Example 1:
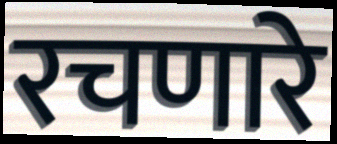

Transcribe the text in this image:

रचणारे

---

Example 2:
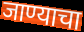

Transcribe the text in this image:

जाण्‍याचा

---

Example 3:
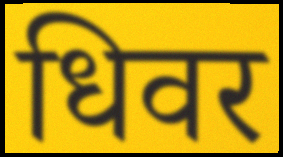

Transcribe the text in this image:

धिवर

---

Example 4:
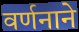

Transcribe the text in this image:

वर्णनाने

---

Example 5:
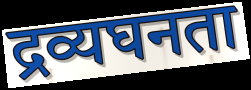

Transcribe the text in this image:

द्रव्यघनता